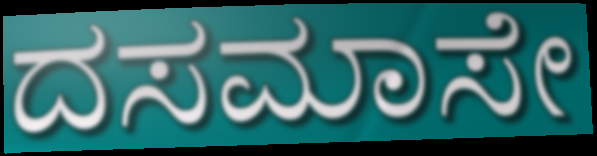
ದಸಮಾಸೇ